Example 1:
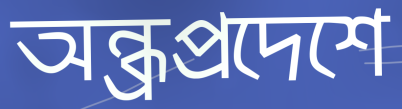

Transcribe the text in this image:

অন্ধ্রপ্রদেশে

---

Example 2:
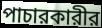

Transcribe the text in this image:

পাচারকারীর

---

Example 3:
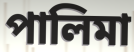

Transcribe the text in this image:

পালিমা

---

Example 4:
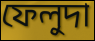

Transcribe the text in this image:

ফেলুদা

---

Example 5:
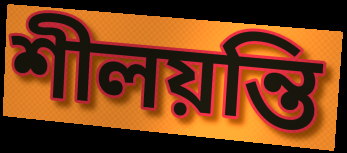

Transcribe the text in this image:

শীলয়ন্তি